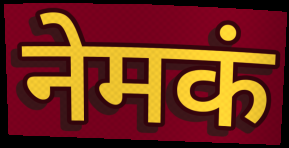
नेमकं